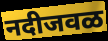
नदीजवळ